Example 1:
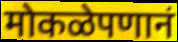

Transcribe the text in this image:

मोकळेपणानं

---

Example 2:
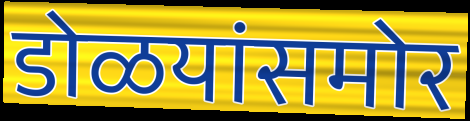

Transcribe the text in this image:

डोळयांसमोर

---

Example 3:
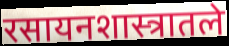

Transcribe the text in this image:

रसायनशास्त्रातले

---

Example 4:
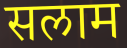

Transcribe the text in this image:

सलाम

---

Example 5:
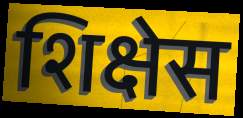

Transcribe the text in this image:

शिक्षेस